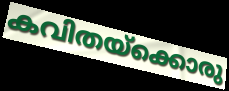
കവിതയ്ക്കൊരു